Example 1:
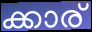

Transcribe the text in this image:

ക്കാര്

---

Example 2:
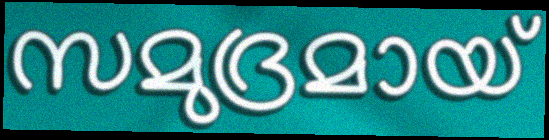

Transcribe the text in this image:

സമുദ്രമായ്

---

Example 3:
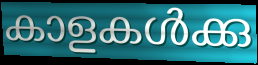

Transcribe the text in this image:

കാളകൾക്കു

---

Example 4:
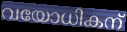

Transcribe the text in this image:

വയോധികന്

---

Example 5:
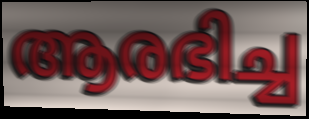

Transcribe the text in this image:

ആരഭിച്ച